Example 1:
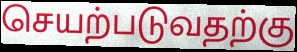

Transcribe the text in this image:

செயற்படுவதற்கு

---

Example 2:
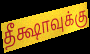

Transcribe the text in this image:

தீக்ஷாவுக்கு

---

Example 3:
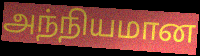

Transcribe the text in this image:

அந்நியமான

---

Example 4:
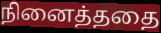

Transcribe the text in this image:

நினைத்ததை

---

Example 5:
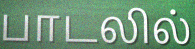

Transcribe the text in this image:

பாடலில்